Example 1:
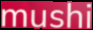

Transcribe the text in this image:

mushi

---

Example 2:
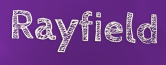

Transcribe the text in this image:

Rayfield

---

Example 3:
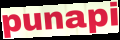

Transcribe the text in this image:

punapi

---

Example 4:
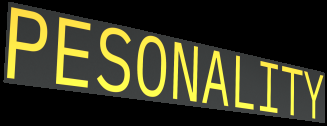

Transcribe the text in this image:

PESONALITY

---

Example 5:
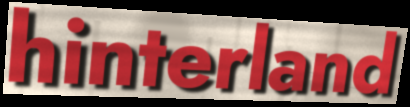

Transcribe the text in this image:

hinterland